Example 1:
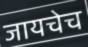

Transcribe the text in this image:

जायचेच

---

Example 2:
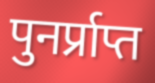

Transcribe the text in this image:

पुनर्प्राप्त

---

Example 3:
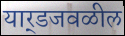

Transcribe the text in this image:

यार्डजवळील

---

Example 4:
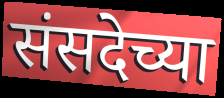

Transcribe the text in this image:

संसदेच्या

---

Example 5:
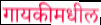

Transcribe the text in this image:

गायकीमधील